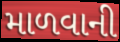
માળવાની